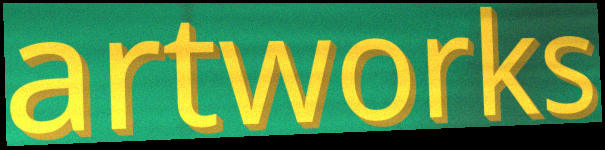
artworks